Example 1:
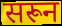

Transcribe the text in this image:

सरून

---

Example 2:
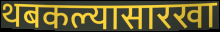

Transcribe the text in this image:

थबकल्यासारखा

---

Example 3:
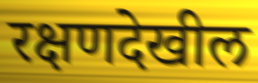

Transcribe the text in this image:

रक्षणदेखील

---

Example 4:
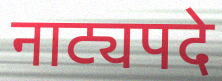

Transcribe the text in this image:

नाट्यपदे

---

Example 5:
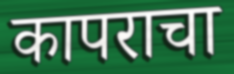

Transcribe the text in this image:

कापराचा